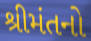
શ્રીમંતનો